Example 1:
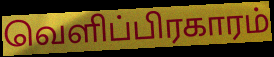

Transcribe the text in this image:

வெளிப்பிரகாரம்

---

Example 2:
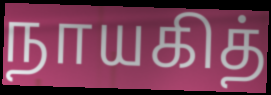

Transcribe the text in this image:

நாயகித்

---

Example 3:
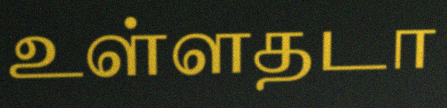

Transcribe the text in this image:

உள்ளதடா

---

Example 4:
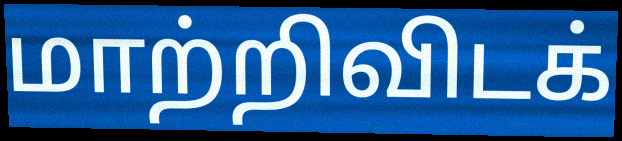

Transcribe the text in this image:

மாற்றிவிடக்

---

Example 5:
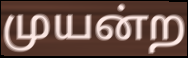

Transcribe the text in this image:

முயன்ற